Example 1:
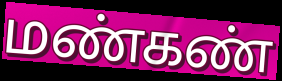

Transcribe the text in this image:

மண்கண்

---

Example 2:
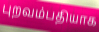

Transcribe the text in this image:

புறவம்பதியாக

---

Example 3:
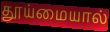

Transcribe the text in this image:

தூய்மையால்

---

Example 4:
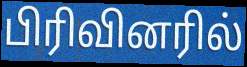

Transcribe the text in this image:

பிரிவினரில்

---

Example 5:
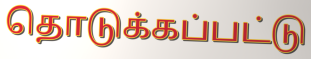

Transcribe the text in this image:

தொடுக்கப்பட்டு